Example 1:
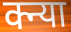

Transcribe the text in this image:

क्न्या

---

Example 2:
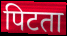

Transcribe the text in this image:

पिटता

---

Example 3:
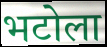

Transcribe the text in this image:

भटोला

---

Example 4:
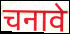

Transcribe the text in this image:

चनावे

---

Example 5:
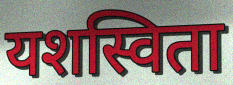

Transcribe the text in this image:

यशस्विता